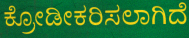
ಕ್ರೋಡೀಕರಿಸಲಾಗಿದೆ